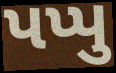
પપ્પુ